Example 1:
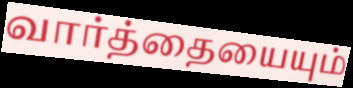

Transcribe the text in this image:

வார்த்தையையும்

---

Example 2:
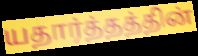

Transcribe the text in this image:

யதார்த்தத்தின்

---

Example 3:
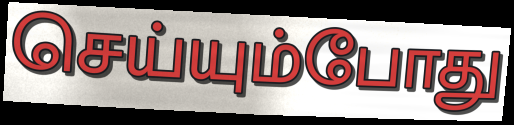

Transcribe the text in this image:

செய்யும்போது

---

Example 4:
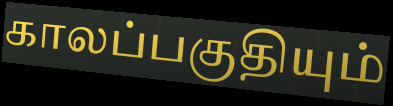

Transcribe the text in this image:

காலப்பகுதியும்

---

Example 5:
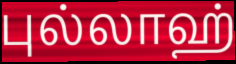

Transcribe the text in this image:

புல்லாஹ்